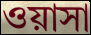
ওয়াসা